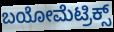
ಬಯೋಮೆಟ್ರಿಕ್ಸ್